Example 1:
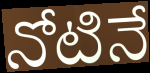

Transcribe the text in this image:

నోటినే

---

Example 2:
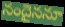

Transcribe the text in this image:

నందైననూ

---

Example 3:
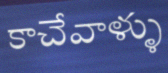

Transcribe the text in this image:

కాచేవాళ్ళు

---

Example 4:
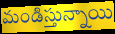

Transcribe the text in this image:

మండిస్తున్నాయి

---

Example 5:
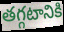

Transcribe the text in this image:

తగ్గటానికి